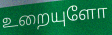
உறையுளோ